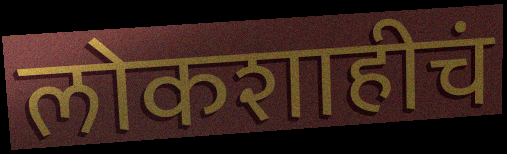
लोकशाहीचं